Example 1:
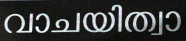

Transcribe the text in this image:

വാചയിത്വാ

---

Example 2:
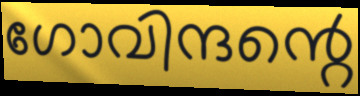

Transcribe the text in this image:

ഗോവിന്ദന്റെ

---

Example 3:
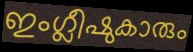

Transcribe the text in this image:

ഇംഗ്ലീഷുകാരും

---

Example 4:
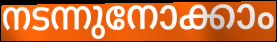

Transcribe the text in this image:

നടന്നുനോക്കാം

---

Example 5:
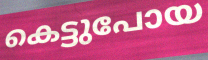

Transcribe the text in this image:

കെട്ടുപോയ